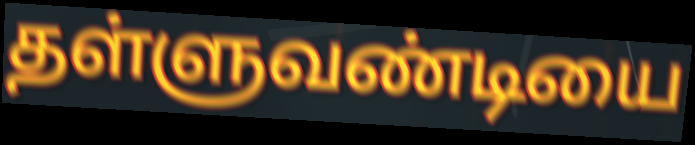
தள்ளுவண்டியை